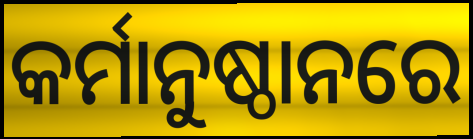
କର୍ମାନୁଷ୍ଠାନରେ